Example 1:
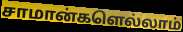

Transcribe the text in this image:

சாமான்களெல்லாம்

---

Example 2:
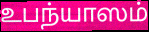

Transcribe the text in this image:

உபந்யாஸம்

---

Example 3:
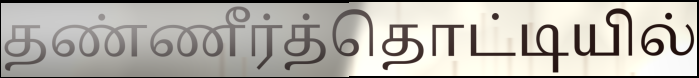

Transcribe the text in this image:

தண்ணீர்த்தொட்டியில்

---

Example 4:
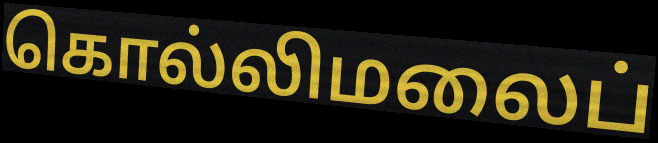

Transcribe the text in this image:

கொல்லிமலைப்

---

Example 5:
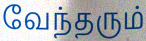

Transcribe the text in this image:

வேந்தரும்